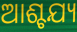
ଆଶ୍ଚଯ୍ୟ